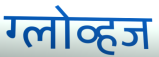
ग्लोव्हज